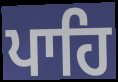
ਪਾਹਿ